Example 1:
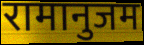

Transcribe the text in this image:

रामानुजम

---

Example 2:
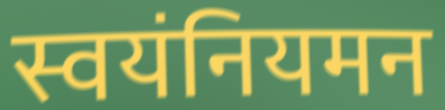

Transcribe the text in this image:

स्वयंनियमन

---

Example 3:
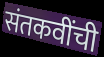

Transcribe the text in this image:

संतकवींची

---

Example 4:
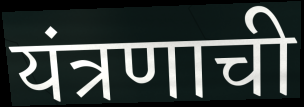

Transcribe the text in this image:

यंत्रणाची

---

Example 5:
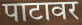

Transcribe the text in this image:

पाटावर